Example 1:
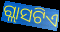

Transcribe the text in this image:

ଗ୍ଲାସଟିଏ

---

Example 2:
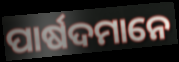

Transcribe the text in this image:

ପାର୍ଷଦମାନେ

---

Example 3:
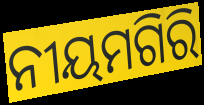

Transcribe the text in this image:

ନୀୟମଗିରି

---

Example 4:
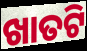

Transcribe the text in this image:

ଖାତଟି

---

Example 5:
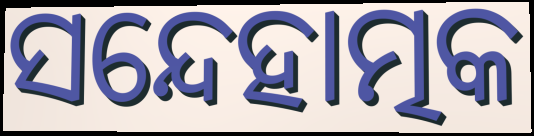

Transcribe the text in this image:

ସନ୍ଦେହାତ୍ମକ